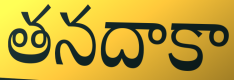
తనదాకా